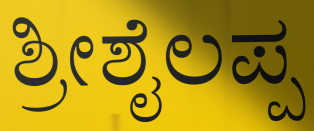
ಶ್ರೀಶೈಲಪ್ಪ